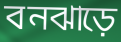
বনঝাড়ে